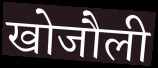
खोजौली